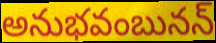
అనుభవంబునన్